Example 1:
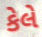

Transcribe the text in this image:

કેલે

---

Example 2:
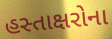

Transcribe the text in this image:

હસ્તાક્ષરોના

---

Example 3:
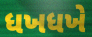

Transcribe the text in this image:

ધખધખે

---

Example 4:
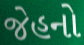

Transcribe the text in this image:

જેહનો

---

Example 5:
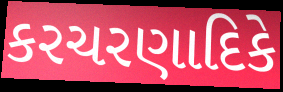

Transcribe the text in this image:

કરચરણાદિકે